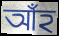
আঁহ